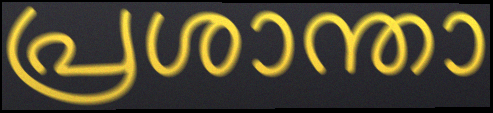
പ്രശാന്താ